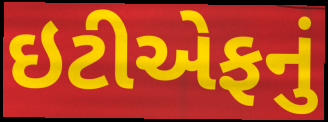
ઇટીએફનું